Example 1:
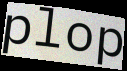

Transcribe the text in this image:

plop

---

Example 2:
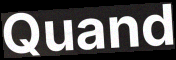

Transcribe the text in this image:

Quand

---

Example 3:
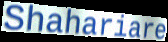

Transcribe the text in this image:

Shahariare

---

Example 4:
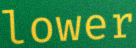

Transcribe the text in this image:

lower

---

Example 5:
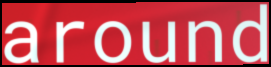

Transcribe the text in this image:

around